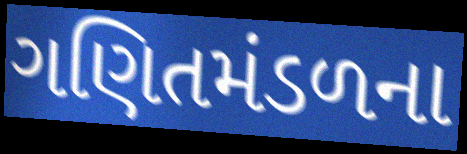
ગણિતમંડળના